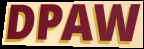
DPAW